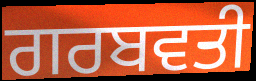
ਗਰਬਵਤੀ